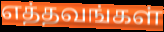
எத்தவங்கள்